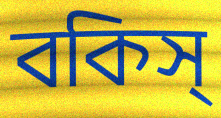
বকিস্